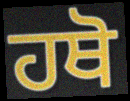
ਹਥੋ